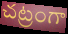
చట్రంగా